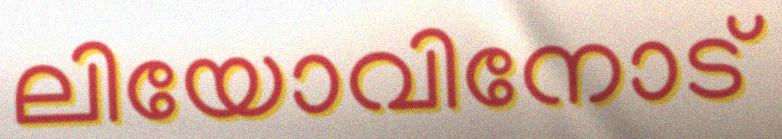
ലിയോവിനോട്